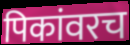
पिकांवरच